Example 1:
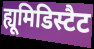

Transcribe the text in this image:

ह्यूमिडिस्टैट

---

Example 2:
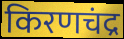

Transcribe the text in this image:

किरणचंद्र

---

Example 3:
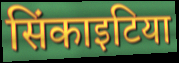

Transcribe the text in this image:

सिंकाइटिया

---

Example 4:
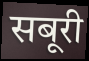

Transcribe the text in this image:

सबूरी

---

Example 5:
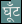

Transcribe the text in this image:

घूँट